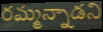
రమ్మన్నాడని